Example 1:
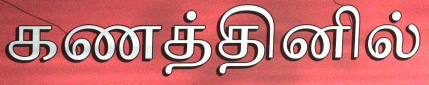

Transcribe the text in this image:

கணத்தினில்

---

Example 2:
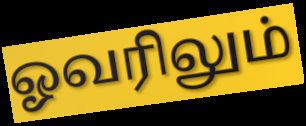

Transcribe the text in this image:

ஓவரிலும்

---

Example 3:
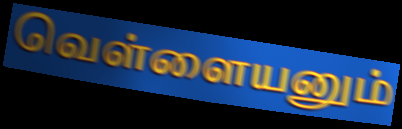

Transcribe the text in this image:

வெள்ளையனும்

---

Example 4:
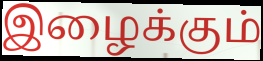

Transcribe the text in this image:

இழைக்கும்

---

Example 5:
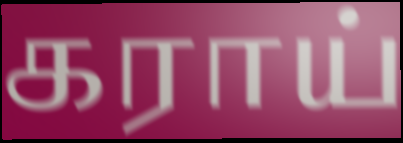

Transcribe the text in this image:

கராய்